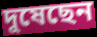
দুষেছেন